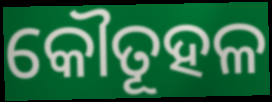
କୌତୂହଳ